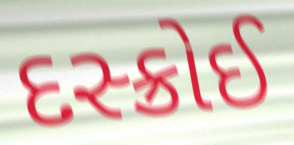
દસ્ક્રોઈ